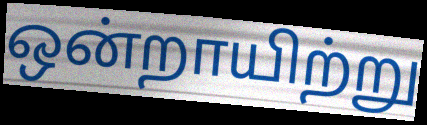
ஒன்றாயிற்று